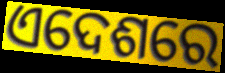
ଏଦେଶରେ